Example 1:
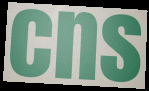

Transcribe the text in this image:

cns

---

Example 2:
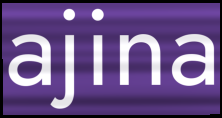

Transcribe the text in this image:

ajina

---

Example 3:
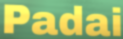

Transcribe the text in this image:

Padai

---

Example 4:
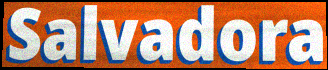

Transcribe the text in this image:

Salvadora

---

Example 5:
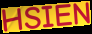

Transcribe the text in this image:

HSIEN